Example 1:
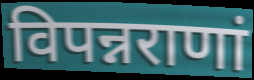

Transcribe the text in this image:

विपन्नराणां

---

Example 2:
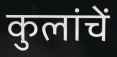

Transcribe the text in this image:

कुलांचें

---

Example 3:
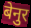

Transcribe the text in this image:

बेनुर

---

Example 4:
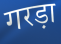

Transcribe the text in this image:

गरड़ा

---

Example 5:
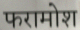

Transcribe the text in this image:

फरामोश